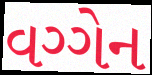
વગ્ગેન